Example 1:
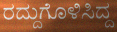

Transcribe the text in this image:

ರದ್ದುಗೊಳಿಸಿದ್ದ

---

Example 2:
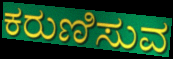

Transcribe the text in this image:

ಕರುಣಿಸುವ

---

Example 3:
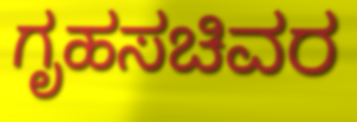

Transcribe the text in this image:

ಗೃಹಸಚಿವರ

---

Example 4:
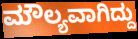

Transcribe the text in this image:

ಮೌಲ್ಯವಾಗಿದ್ದು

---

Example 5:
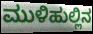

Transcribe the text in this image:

ಮುಳಿಹುಲ್ಲಿನ